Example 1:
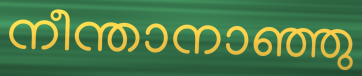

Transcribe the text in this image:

നീന്താനാഞ്ഞു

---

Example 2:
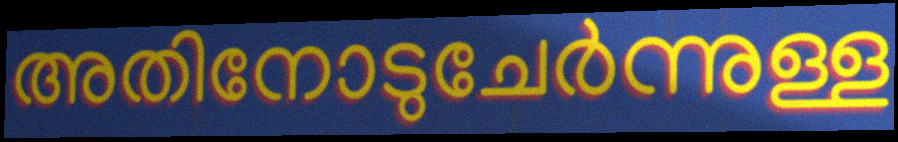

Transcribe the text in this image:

അതിനോടുചേർന്നുള്ള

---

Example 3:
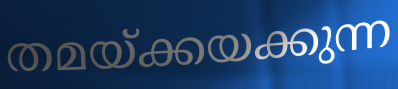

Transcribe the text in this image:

തമയ്ക്കയക്കുന്ന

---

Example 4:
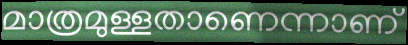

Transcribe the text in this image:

മാത്രമുള്ളതാണെന്നാണ്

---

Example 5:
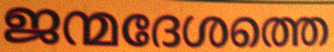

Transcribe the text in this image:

ജന്മദേശത്തെ